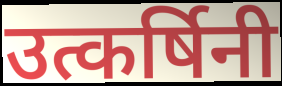
उत्कर्षिनी